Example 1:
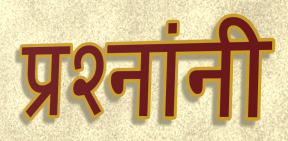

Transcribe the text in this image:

प्रश्नांनी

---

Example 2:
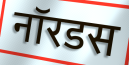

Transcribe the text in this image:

नॉरडस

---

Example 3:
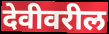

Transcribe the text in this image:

देवीवरील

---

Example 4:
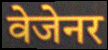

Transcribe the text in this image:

वेजेनर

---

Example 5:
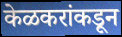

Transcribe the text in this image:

केळकरांकडून